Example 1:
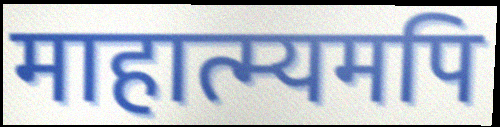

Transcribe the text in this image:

माहात्म्यमपि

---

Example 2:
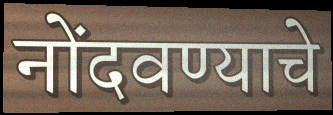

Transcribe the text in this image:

नोंदवण्याचे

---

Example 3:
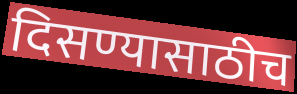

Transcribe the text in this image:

दिसण्यासाठीच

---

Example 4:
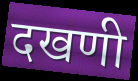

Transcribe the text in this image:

दखणी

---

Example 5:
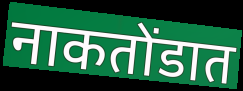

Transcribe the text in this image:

नाकतोंडात